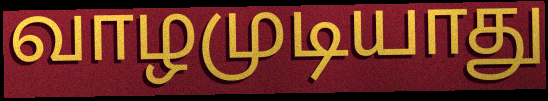
வாழமுடியாது